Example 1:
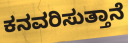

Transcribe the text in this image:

ಕನವರಿಸುತ್ತಾನೆ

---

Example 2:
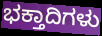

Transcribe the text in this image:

ಭಕ್ತಾದಿಗಳು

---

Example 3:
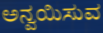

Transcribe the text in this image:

ಅನ್ವಯಿಸುವ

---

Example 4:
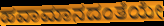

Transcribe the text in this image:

ಹವಾಮಾನದಂತೆಯೇ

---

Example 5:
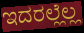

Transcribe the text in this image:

ಇದರಲ್ಲೆಲ್ಲ